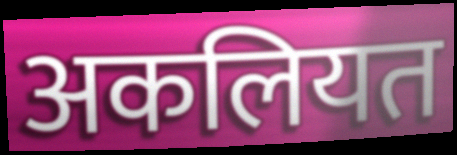
अकलियत